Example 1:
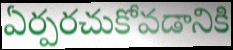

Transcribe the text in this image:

ఏర్పరచుకోవడానికి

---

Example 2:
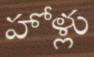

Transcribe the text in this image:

హోళ్లు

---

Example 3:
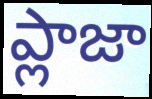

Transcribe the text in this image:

ప్లాజా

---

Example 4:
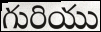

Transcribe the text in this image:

గురియు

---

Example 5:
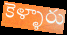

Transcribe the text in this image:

కెళ్ళారు